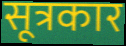
सूत्रकार